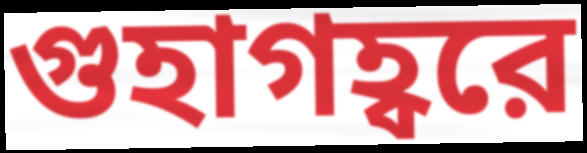
গুহাগহ্বরে